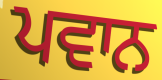
ਪਵਾਨ